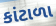
કાંટાળા